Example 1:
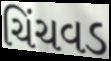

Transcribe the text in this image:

ચિંચવડ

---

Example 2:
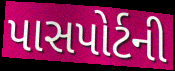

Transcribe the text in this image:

પાસપોર્ટની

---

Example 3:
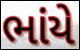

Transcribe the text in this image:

ભાંયે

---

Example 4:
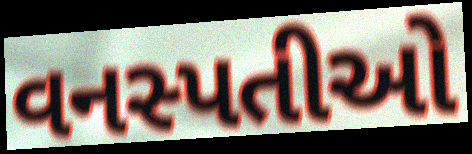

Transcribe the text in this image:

વનસ્પતીઓ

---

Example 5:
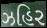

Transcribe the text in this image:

ઝહિર